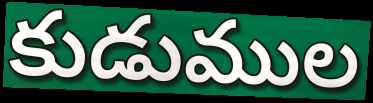
కుడుముల